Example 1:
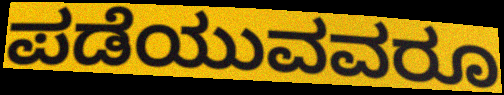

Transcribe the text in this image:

ಪಡೆಯುವವರೂ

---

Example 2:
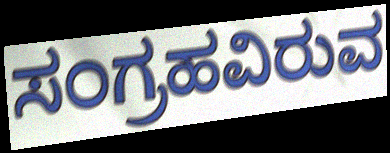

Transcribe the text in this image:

ಸಂಗ್ರಹವಿರುವ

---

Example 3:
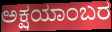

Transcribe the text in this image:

ಅಕ್ಷಯಾಂಬರ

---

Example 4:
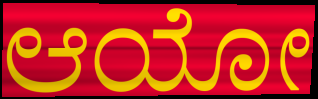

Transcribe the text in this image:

ಆಯೋ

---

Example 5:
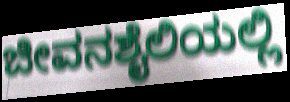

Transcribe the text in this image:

ಜೀವನಶೈಲಿಯಲ್ಲಿ